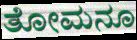
ತೋಮನೂ